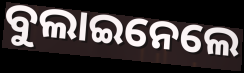
ବୁଲାଇନେଲେ